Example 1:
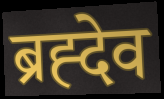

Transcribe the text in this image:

ब्रह्देव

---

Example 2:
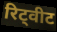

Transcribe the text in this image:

रिट्वीट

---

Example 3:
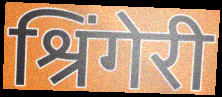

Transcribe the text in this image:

श्रिंगेरी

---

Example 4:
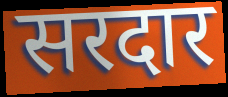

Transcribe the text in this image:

सरदार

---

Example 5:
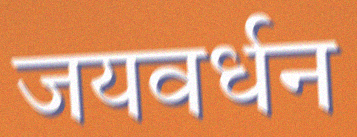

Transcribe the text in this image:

जयवर्धन